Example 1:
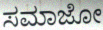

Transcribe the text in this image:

ಸಮಾಜೋ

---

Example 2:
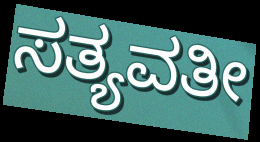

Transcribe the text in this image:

ಸತ್ಯವತೀ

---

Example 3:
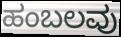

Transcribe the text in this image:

ಹಂಬಲವು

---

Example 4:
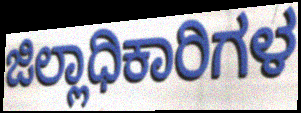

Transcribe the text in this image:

ಜಿಲ್ಲಾಧಿಕಾರಿಗಳ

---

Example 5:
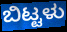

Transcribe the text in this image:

ಬಿಟ್ಟಳು